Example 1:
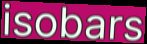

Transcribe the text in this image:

isobars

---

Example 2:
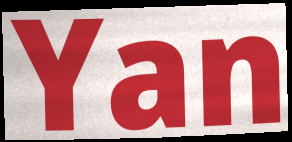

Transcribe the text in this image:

Yan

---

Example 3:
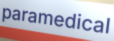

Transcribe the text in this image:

paramedical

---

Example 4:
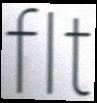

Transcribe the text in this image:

flt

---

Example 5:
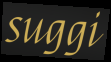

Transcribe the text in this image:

suggi